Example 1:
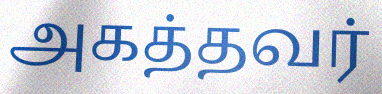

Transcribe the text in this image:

அகத்தவர்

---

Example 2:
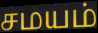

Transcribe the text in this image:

சமயம்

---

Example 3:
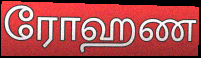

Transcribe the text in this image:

ரோஹண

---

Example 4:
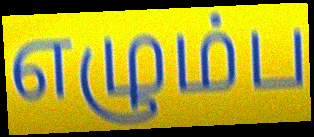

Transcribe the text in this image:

எழும்ப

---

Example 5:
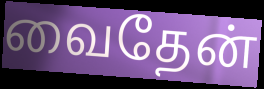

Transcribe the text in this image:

வைதேன்